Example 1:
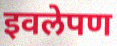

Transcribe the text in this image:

इवलेपण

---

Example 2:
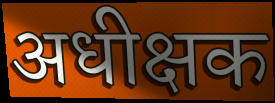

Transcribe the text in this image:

अधीक्षक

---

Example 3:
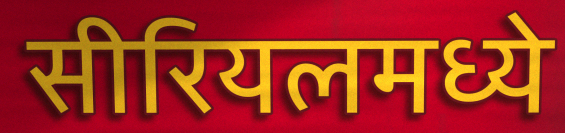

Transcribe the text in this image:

सीरियलमध्ये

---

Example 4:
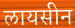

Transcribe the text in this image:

लायसीन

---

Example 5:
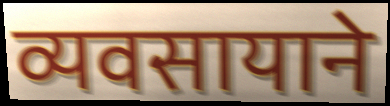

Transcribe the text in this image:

व्यवसायाने